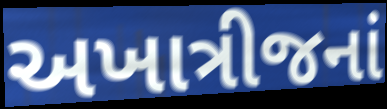
અખાત્રીજનાં